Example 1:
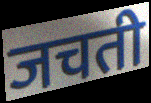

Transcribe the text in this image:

जचती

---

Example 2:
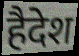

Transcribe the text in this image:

हैदेश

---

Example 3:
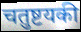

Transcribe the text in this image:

चतुष्टयकी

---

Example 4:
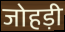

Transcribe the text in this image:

जोहड़ी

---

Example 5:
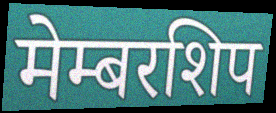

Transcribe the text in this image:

मेम्बरशिप